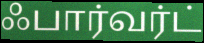
ஃபார்வர்ட்